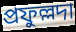
প্রফুল্লদা